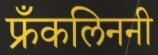
फ्रँकलिननी